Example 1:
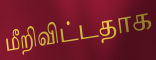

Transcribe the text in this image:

மீறிவிட்டதாக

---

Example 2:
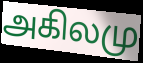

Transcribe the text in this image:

அகிலமு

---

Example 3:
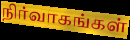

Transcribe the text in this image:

நிர்வாகங்கள்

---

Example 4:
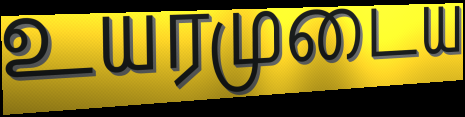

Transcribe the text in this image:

உயரமுடைய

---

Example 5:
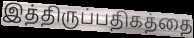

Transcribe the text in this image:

இத்திருப்பதிகத்தை